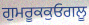
ਗੁਮਰੂਕਕੁਓਗਲੂ